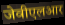
जेवीएलआर